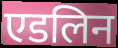
एडलिन